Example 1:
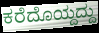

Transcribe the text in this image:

ಕರೆದೊಯ್ದದ್ದು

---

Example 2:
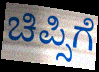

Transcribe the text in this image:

ಚಿಪ್ಸಿಗೆ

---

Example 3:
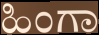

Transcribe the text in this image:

ಹಿಂಗಾ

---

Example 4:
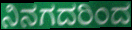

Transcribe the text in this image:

ನಿನಗದರಿಂದ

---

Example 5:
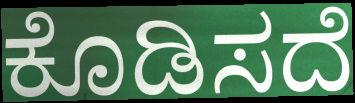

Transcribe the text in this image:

ಕೊಡಿಸದೆ